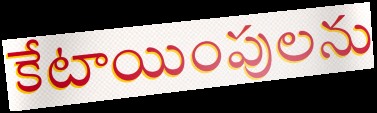
కేటాయింపులను